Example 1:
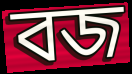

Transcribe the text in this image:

বজ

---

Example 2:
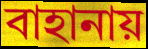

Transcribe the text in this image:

বাহানায়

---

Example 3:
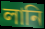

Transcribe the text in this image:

লানি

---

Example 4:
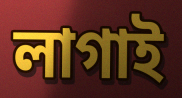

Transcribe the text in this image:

লাগাই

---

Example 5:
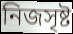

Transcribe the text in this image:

নিজসৃষ্ট